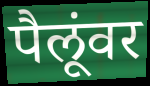
पैलूंवर